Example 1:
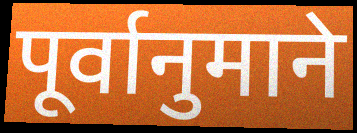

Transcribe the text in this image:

पूर्वानुमाने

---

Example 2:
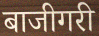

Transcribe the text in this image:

बाजीगरी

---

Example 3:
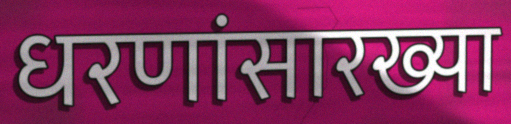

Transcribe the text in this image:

धरणांसारख्या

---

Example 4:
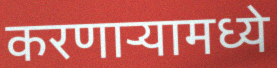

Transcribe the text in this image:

करणाऱ्यामध्ये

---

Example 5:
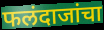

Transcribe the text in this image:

फलंदाजांचा